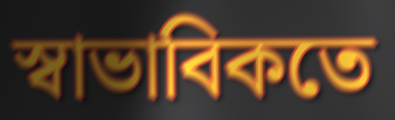
স্বাভাবিকতে